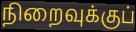
நிறைவுக்குப்